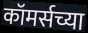
कॉमर्सच्या